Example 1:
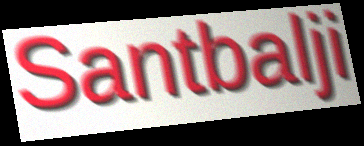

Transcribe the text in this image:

Santbalji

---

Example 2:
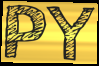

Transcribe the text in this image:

PY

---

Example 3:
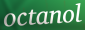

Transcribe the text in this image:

octanol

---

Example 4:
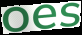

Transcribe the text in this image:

oes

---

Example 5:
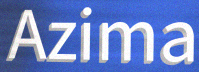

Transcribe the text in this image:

Azima